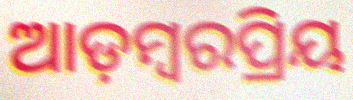
ଆଡ଼ମ୍ବରପ୍ରିୟ